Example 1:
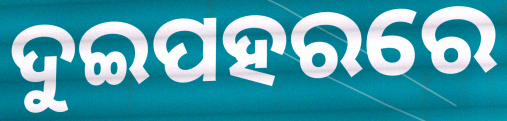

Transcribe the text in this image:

ଦୁଇପହରରେ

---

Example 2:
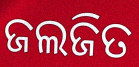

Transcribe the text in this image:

ଜଲଜିତ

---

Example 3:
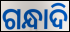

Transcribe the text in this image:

ଗନ୍ଧାଦି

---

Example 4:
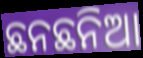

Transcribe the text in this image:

ଛନଛନିଆ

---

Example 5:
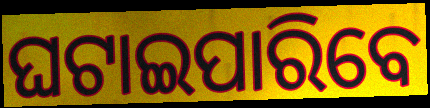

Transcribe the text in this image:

ଘଟାଇପାରିବେ